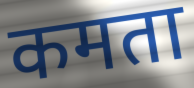
कमता